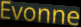
Evonne